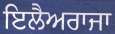
ਇਲੈਅਰਾਜਾ